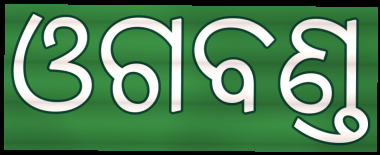
ଓଗବଣ୍ଡ